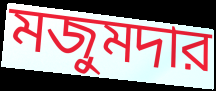
মজুমদার